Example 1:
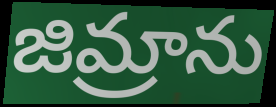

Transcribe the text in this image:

జిమ్రాను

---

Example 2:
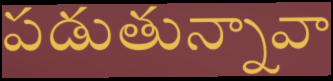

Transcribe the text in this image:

పడుతున్నావా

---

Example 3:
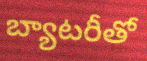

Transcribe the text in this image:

బ్యాటరీతో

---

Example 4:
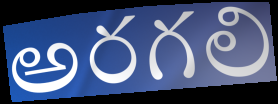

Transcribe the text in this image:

అరగలి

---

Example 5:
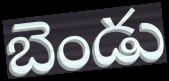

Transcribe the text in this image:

బెండు